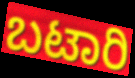
ಬಟಾರಿ